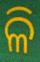
ଳି